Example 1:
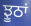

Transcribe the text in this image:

ਝੂਠਾਂ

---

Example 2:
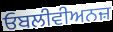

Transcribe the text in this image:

ਓਬਲੀਵੀਅਨਜ਼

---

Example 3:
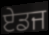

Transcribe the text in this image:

ਏਡਜ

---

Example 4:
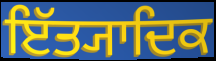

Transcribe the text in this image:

ਇੱਤ੍ਯਾਦਿਕ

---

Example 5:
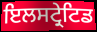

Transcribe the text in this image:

ਇਲਸਟ੍ਰੇਟਿਡ